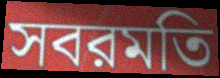
সবরমতি